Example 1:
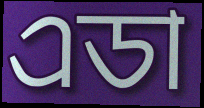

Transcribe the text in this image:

এডা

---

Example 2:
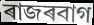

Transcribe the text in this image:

ৰাজৰবাগ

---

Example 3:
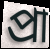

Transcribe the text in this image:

প্ৰা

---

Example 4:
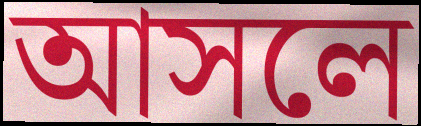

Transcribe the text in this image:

আসলে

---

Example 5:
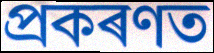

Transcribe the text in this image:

প্ৰকৰণত